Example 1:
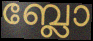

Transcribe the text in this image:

ബ്ലോ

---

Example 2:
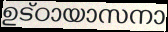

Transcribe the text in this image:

ഉട്ഠായാസനാ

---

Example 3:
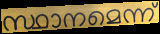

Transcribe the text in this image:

സ്ഥാനമെന്ന്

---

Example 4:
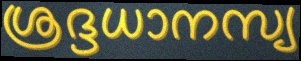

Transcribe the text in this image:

ശ്രദ്ദധാനസ്യ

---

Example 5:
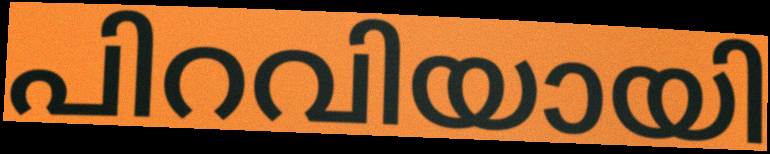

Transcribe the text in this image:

പിറവിയായി